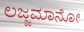
ಲಜ್ಜಮಾನೋ